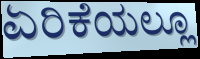
ಏರಿಕೆಯಲ್ಲೂ